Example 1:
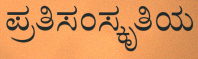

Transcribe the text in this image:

ಪ್ರತಿಸಂಸ್ಕೃತಿಯ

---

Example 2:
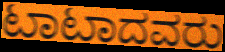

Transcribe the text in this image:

ಟಾಟಾದವರು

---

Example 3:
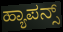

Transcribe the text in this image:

ಹ್ಯಾಪನ್ಸ್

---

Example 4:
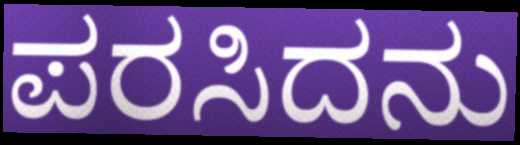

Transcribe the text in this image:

ಪರಸಿದನು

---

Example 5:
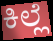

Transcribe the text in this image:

ಕಿಲ್ಲೆ